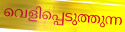
വെളിപ്പെടുത്തുന്ന